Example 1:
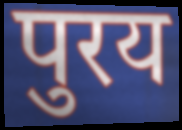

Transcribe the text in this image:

पुरय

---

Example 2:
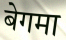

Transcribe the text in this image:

बेगमा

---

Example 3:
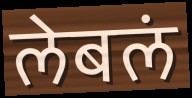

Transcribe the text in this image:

लेबलं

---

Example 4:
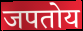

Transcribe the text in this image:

जपतोय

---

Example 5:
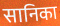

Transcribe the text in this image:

सानिका